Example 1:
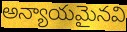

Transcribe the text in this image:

అన్యాయమైనవి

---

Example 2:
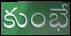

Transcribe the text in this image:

కుంభే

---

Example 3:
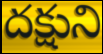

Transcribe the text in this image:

దక్షుని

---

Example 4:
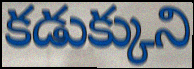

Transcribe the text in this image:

కడుక్కుని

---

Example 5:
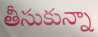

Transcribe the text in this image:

తీసుకున్నా